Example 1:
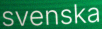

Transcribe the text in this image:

svenska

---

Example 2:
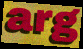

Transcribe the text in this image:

arg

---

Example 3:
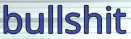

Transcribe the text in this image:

bullshit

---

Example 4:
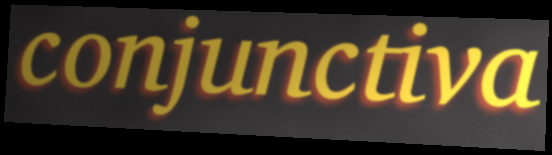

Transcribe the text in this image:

conjunctiva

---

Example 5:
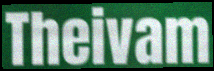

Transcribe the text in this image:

Theivam